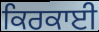
ਕਿਰਕਾਈ